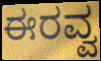
ಈರವ್ವ